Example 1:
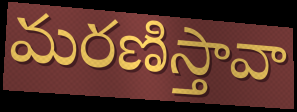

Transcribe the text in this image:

మరణిస్తావా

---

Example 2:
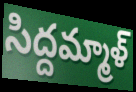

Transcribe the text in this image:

సిద్దమ్మాళ్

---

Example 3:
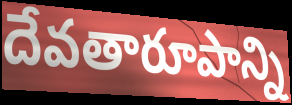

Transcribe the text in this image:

దేవతారూపాన్ని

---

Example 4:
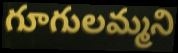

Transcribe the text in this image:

గూగులమ్మని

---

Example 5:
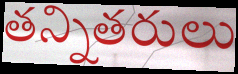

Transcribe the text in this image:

తన్నితరులు